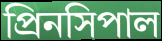
প্রিনসিপাল